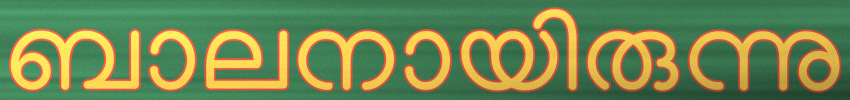
ബാലനായിരുന്നു